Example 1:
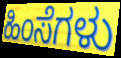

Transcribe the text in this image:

ಹಿಂಸೆಗಳು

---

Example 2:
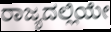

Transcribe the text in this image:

ರಾಜ್ಯದಲ್ಲಿಯೇ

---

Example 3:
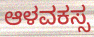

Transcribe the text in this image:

ಆಳವಕಸ್ಸ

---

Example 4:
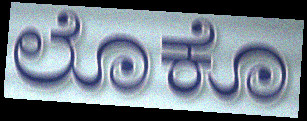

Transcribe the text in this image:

ಲೊಕೊ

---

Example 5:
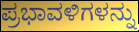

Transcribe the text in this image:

ಪ್ರಭಾವಳಿಗಳನ್ನು